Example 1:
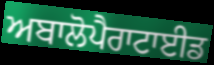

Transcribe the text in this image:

ਅਬਾਲੋਪੈਰਾਟਾਈਡ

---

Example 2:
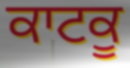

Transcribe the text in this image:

ਕਾਟਕੂ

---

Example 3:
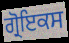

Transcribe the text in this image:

ਗ੍ਰੋਇਕਸ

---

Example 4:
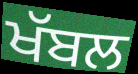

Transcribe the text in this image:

ਖੱਬਲ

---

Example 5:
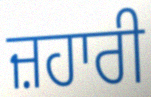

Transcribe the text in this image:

ਜ਼ਹਾਰੀ